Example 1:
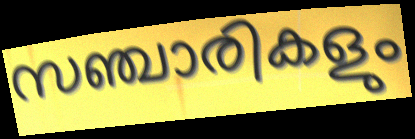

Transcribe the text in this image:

സഞ്ചാരികളും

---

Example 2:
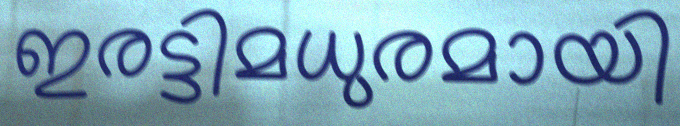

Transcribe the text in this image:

ഇരട്ടിമധുരമായി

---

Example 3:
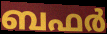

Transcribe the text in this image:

ബഫർ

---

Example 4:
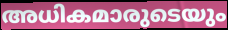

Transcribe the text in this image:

അധികമാരുടെയും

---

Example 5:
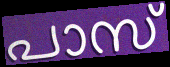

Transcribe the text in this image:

പാസ്